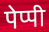
पेप्पी